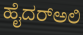
ಹೈದರ್‌ಅಲಿ